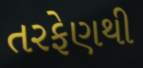
તરફેણથી